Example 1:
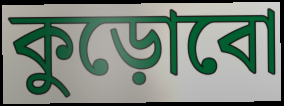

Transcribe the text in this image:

কুড়োবো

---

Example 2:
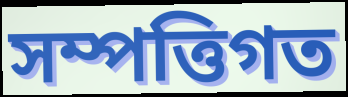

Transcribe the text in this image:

সম্পত্তিগত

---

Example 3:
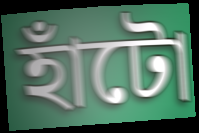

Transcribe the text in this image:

হাঁটো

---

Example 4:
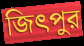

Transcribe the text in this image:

জিৎপুর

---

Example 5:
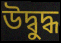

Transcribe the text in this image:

উদ্বুদ্ধ